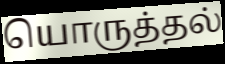
யொருத்தல்